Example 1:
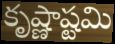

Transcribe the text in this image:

కృష్ణాష్టమి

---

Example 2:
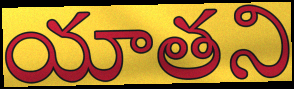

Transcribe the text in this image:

యాతని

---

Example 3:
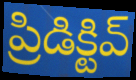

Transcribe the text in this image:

ప్రిడిక్టివ్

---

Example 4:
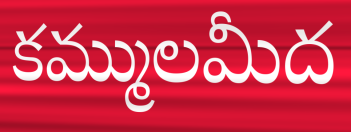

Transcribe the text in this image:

కమ్ములమీద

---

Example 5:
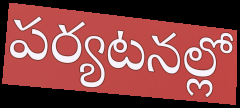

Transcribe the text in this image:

పర్యటనల్లో